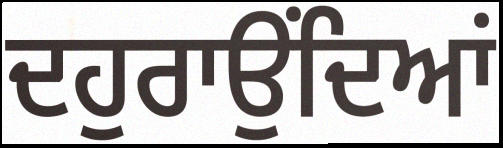
ਦਹੁਰਾਉਂਦਿਆਂ